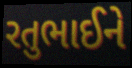
રતુભાઈને